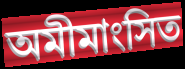
অমীমাংসিত